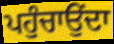
ਪਹੁੰਚਾਉਂਦਾ